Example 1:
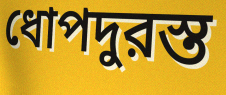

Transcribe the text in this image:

ধোপদুরস্ত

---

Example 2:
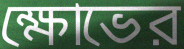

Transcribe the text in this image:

ক্ষোভের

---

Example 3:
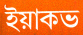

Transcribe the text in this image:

ইয়াকভ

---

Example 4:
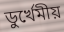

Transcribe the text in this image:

ডুর্খেমীয়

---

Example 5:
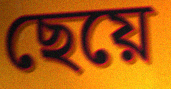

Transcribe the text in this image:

ছেয়ে